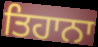
ਤਿਹਾਨਾ